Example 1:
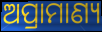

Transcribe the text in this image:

ଅପ୍ରାମାଣ୍ୟ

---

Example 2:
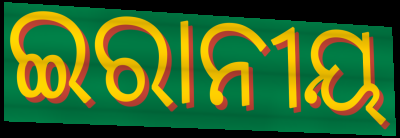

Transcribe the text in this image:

ଇରାନୀୟ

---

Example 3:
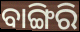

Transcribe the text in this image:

ବାଙ୍ଗିରି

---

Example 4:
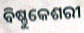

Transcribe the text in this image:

ବିଷ୍ଣୁକେଶରୀ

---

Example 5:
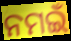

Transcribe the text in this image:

ନମଇଁ